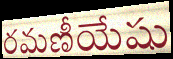
రమణీయేషు